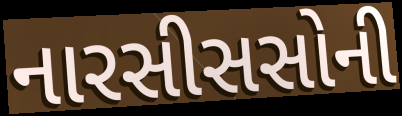
નારસીસસોની